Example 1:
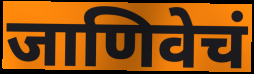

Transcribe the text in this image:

जाणिवेचं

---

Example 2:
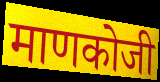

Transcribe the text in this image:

माणकोजी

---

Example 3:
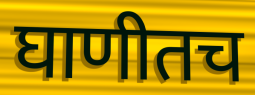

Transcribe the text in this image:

घाणीतच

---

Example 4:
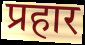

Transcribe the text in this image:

प्रहार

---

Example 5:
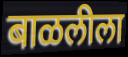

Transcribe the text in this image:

बाळलीला